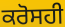
ਕਰੋਸਹੀ